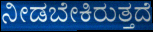
ನೀಡಬೇಕಿರುತ್ತದೆ